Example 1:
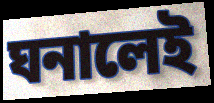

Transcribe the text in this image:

ঘনালেই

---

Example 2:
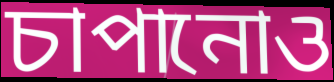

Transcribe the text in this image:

চাপানোও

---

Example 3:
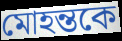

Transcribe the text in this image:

মোহন্তকে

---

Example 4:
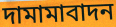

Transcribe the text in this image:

দামামাবাদন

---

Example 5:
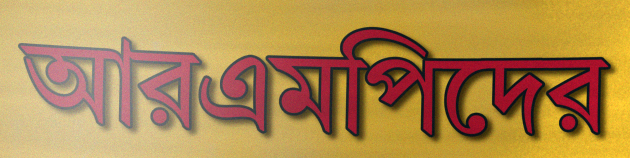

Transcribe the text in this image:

আরএমপিদের